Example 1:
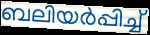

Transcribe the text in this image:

ബലിയർപ്പിച്ച്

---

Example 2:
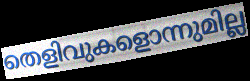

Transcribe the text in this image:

തെളിവുകളൊന്നുമില്ല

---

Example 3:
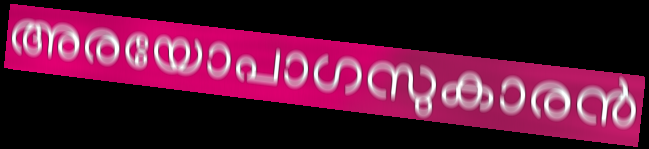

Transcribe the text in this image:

അരയോപാഗസുകാരൻ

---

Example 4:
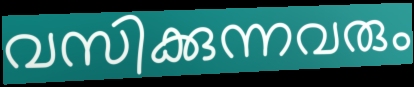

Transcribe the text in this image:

വസിക്കുന്നവരും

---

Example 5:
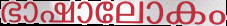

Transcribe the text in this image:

ഭാഷാലോകം